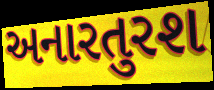
અનારતુરશ